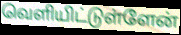
வெளியிட்டுள்ளேன்